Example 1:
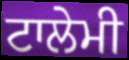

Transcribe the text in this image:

ਟਾਲੇਮੀ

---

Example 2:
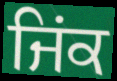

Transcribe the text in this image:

ਜਿਂਕ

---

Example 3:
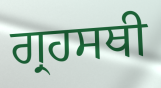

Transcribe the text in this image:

ਗ੍ਰਹਸਥੀ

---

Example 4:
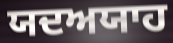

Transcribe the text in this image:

ਯਦਅਯਾਹ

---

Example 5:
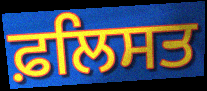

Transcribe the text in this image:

ਫ਼ਲਿਸਤ